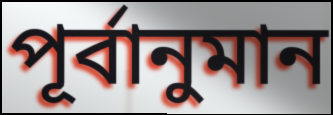
পূর্বানুমান